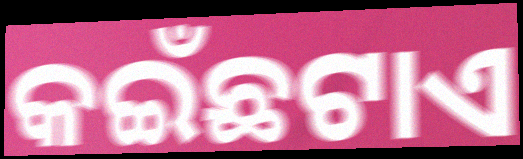
କଇଁଛଟାଏ